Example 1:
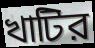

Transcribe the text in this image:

খাটির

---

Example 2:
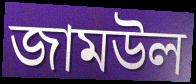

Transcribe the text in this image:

জামউল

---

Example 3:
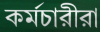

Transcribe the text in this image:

কর্মচারীরা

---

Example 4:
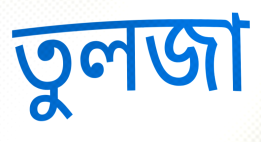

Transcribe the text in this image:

তুলজা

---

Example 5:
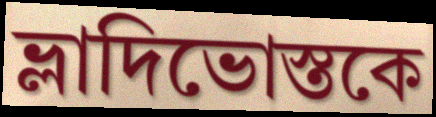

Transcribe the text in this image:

ভ্লাদিভোস্তকে